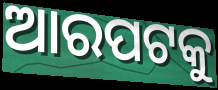
ଆରପଟକୁ